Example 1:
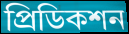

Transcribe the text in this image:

প্রিডিকশন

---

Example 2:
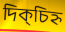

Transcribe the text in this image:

দিক্‌চিহ্ন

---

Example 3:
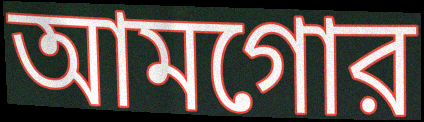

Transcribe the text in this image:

আমগোর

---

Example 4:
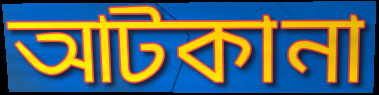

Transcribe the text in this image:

আটকানা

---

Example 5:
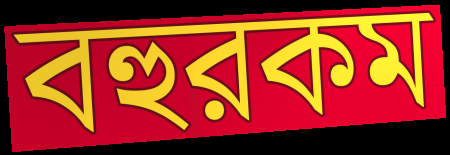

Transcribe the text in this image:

বহুরকম